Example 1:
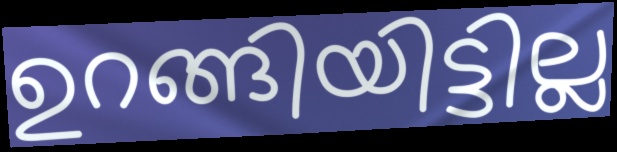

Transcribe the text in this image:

ഉറങ്ങിയിട്ടില്ല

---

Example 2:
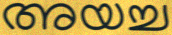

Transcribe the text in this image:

അയച്ച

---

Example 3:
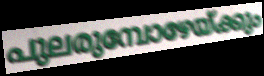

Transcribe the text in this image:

പുലരുമ്പോഴേയ്ക്കും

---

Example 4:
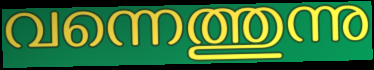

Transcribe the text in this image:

വന്നെത്തുന്നു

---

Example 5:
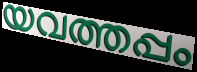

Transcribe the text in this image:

യവത്തപ്പം